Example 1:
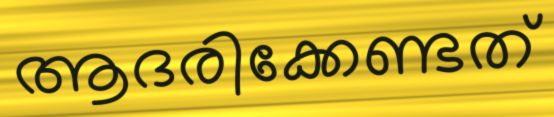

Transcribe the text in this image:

ആദരിക്കേണ്ടത്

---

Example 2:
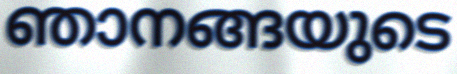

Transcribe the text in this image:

ഞാനങ്ങയുടെ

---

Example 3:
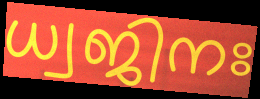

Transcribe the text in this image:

ധ്വജിനഃ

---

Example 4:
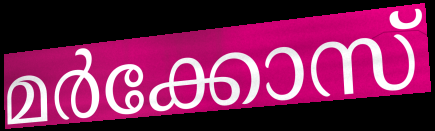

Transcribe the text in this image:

മർക്കോസ്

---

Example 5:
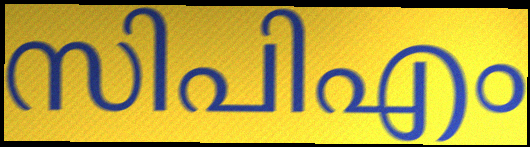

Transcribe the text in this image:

സിപിഎം